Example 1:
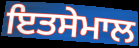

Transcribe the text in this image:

ਇਤਸੇਮਾਲ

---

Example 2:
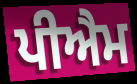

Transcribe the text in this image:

ਪੀਐਮ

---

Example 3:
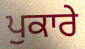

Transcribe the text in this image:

ਪੁਕਾਰੇ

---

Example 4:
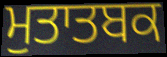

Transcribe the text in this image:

ਮੁਤਾਤਬਕ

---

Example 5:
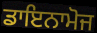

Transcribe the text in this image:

ਡਾਇਨਾਮੋਜ